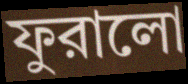
ফুরালো